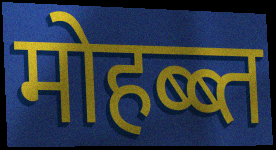
मोहब्ब्त